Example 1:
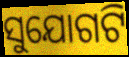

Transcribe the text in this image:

ସୁଯୋଗଟି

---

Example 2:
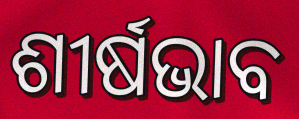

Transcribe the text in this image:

ଶୀର୍ଷଭାବ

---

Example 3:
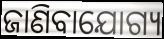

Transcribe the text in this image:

ଜାଣିବାଯୋଗ୍ୟ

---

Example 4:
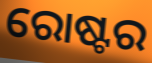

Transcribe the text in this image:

ରୋଷ୍ଟର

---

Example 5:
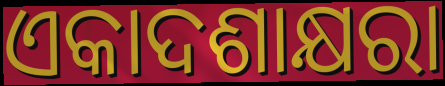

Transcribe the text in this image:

ଏକାଦଶାକ୍ଷରା